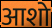
आशो